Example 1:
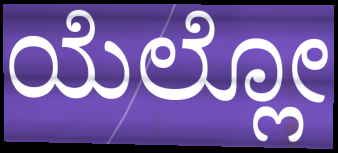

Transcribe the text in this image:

ಯೆಲ್ಲೋ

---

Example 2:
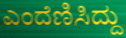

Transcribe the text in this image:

ಎಂದೆಣಿಸಿದ್ದು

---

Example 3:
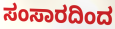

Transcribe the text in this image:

ಸಂಸಾರದಿಂದ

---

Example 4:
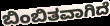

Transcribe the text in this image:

ಬಿಂಬಿತವಾಗಿದೆ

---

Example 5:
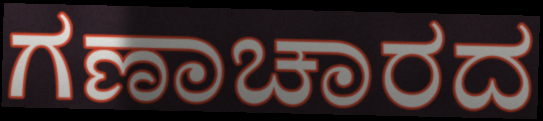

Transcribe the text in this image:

ಗಣಾಚಾರದ